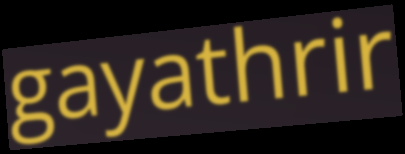
gayathrir